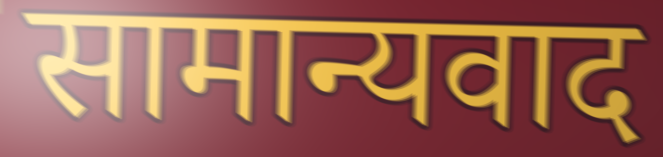
सामान्यवाद